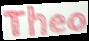
Theo